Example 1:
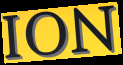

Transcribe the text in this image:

ION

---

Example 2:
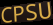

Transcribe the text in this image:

CPSU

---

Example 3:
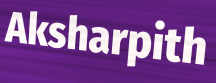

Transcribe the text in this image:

Aksharpith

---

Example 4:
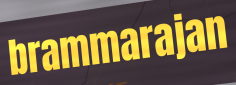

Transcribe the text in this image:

brammarajan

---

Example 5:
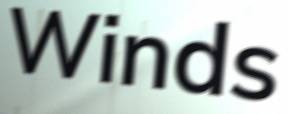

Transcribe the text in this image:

Winds